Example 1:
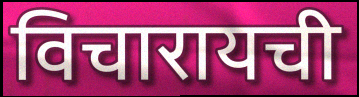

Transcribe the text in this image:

विचारायची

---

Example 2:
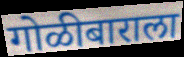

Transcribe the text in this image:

गोळीबाराला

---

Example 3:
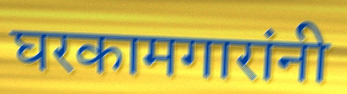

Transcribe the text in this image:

घरकामगारांनी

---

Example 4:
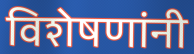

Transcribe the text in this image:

विशेषणांनी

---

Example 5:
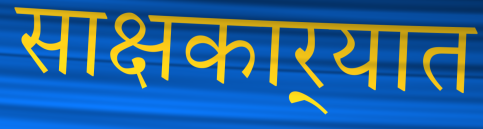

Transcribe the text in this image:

साक्षकार्यात